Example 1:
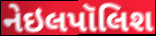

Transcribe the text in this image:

નેઇલપૉલિશ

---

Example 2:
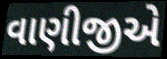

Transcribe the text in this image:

વાણીજીએ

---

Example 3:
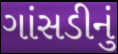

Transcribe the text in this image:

ગાંસડીનું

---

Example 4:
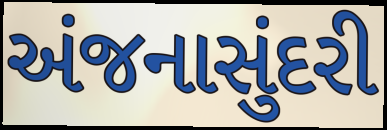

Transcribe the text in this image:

અંજનાસુંદરી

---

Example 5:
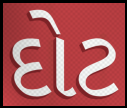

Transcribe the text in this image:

દોટ